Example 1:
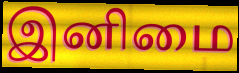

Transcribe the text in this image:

இனிமை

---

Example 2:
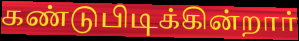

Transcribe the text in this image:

கண்டுபிடிக்கின்றார்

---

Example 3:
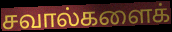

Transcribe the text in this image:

சவால்களைக்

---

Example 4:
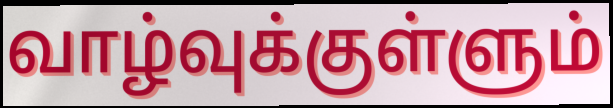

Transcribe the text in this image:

வாழ்வுக்குள்ளும்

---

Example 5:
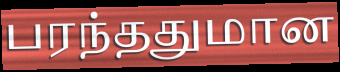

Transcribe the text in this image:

பரந்ததுமான